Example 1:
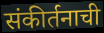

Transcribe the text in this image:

संकीर्तनाची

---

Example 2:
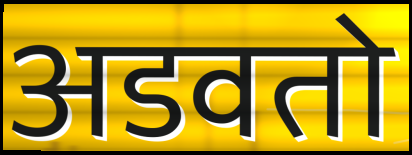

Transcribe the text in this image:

अडवतो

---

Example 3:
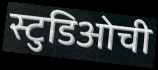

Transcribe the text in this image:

स्टुडिओची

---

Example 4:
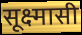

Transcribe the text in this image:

सूक्ष्मासी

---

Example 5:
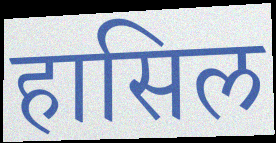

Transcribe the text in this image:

हासिल